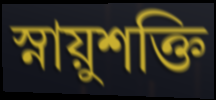
স্নায়ুশক্তি